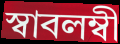
স্বাবলম্বী